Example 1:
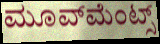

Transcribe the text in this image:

ಮೂವ್‌ಮೆಂಟ್ಸ್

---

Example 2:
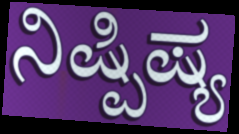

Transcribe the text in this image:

ನಿಷ್ಪಿಷ್ಯ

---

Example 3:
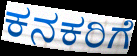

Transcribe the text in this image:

ಕನಕರಿಗೆ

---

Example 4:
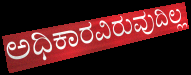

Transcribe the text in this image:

ಅಧಿಕಾರವಿರುವುದಿಲ್ಲ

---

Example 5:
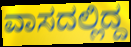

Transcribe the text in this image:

ವಾಸದಲ್ಲಿದ್ದ